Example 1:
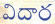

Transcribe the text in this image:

విదార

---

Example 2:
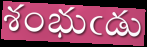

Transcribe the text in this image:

శంభుఁడు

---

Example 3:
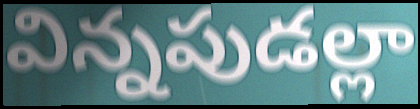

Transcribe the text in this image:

విన్నపుడల్లా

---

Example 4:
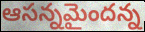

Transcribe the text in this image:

ఆసన్నమైందన్న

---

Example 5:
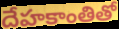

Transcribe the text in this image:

దేహకాంతితో